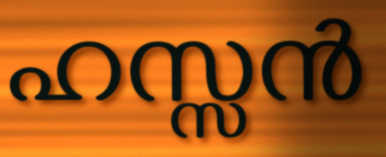
ഹസ്സൻ